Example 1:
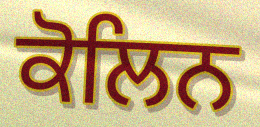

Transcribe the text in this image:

ਕੋਲਿਨ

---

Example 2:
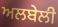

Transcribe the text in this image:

ਅਲਬੇਲੀ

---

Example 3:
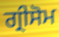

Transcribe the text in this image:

ਗ੍ਰੀਸੋਮ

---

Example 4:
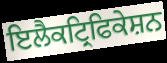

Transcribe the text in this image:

ਇਲੈਕਟ੍ਰਿਫਿਕੇਸ਼ਨ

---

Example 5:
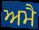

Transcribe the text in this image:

ਅਮੈ